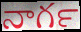
నాగర్‍